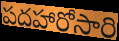
పదహారోసారి